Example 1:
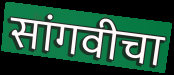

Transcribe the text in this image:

सांगवीचा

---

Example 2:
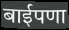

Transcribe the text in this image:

बाईपणा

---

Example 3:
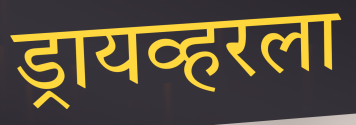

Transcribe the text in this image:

ड्रायव्हरला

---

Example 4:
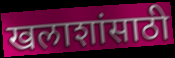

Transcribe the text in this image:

खलाशांसाठी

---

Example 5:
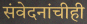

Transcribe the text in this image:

संवेदनांचीही